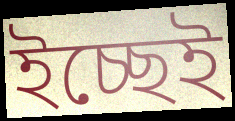
ইচ্ছেই